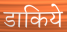
डाकिये